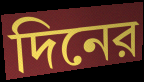
দিনের